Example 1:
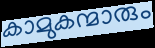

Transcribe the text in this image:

കാമുകന്മാരും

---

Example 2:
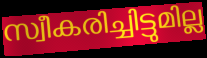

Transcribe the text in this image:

സ്വീകരിച്ചിട്ടുമില്ല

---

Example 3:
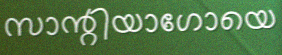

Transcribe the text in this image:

സാന്റിയാഗോയെ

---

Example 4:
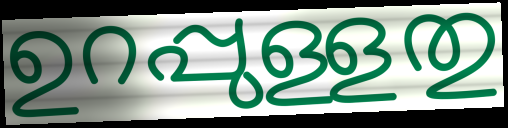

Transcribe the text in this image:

ഉറപ്പുള്ളതു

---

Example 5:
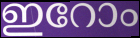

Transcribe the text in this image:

ഇറോം